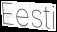
Eesti